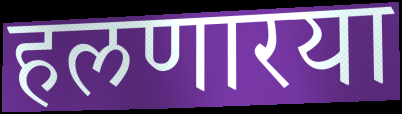
हलणारया